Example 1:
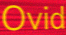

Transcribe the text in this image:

Ovid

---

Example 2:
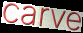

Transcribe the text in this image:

carve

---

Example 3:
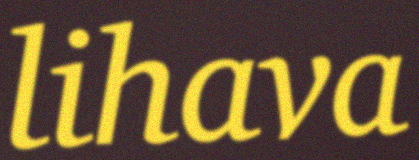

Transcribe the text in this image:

lihava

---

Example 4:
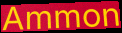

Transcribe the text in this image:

Ammon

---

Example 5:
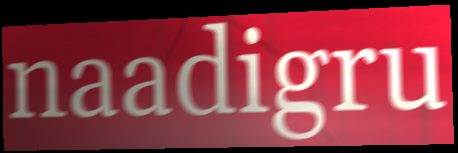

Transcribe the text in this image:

naadigru